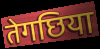
तेगछिया